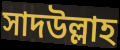
সাদউল্লাহ